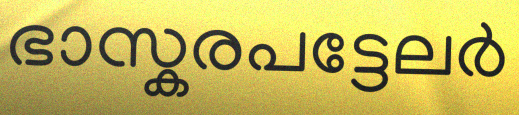
ഭാസ്കരപട്ടേലർ